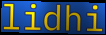
lidhi